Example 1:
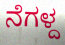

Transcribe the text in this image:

ನೆಗಳ್ದ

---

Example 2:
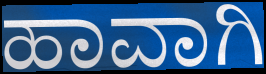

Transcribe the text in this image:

ಹಾವಾಗಿ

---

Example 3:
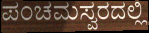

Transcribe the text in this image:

ಪಂಚಮಸ್ವರದಲ್ಲಿ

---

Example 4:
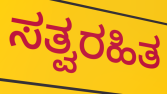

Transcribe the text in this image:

ಸತ್ವರಹಿತ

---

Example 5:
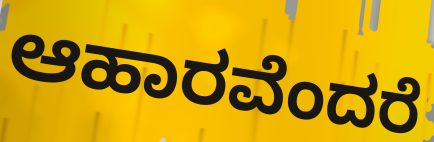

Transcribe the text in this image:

ಆಹಾರವೆಂದರೆ